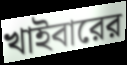
খাইবারের